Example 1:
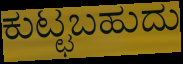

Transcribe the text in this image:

ಕುಟ್ಟಬಹುದು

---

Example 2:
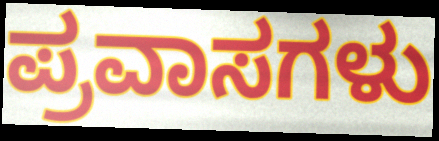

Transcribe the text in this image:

ಪ್ರವಾಸಗಳು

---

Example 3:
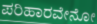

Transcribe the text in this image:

ಪರಿಹಾರವೇನೋ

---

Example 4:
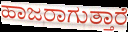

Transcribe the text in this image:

ಹಾಜರಾಗುತ್ತಾರೆ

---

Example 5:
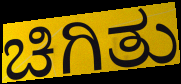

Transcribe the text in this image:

ಚಿಗಿತು